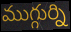
ముగ్గుర్ని